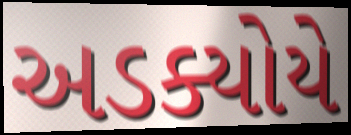
અડક્યોયે